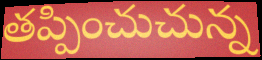
తప్పించుచున్న